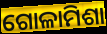
ଗୋଳାମିଶା